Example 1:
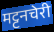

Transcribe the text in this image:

मट्टनचेरी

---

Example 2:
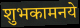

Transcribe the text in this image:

शुभकामनये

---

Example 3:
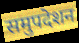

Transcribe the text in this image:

समुपदेशन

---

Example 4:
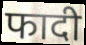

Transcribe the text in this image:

फादी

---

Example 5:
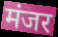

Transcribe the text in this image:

मंजर